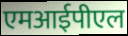
एमआईपीएल